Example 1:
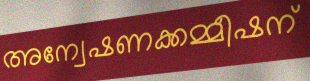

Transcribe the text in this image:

അന്വേഷണക്കമ്മീഷന്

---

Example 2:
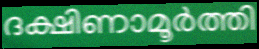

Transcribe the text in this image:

ദക്ഷിണാമൂർത്തി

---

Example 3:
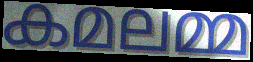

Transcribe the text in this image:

കമലമ്മ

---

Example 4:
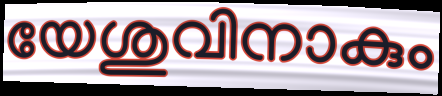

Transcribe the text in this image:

യേശുവിനാകും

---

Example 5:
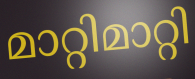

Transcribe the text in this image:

മാറ്റിമാറ്റി